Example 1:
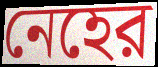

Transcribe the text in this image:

নেহের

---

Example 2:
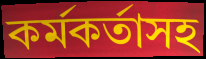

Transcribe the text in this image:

কর্মকর্তাসহ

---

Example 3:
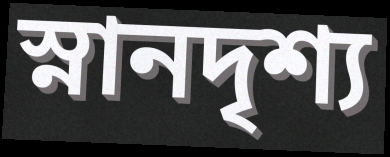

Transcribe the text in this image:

স্নানদৃশ্য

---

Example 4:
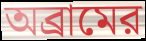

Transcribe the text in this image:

অব্রামের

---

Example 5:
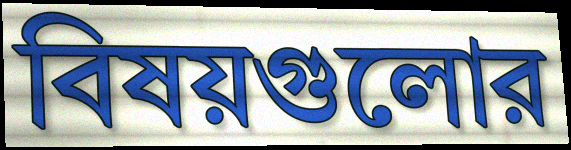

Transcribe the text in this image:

বিষয়গুলোর